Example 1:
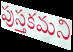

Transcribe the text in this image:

పుస్తకమని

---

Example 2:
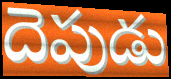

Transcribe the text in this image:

దెపుడు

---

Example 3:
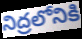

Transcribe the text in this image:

నిద్రలోనికి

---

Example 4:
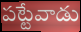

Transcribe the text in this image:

పట్టేవాడు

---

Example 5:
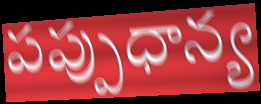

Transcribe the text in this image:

పప్పుధాన్య